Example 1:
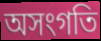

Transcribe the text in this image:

অসংগতি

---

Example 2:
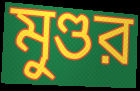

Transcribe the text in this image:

মুণ্ডর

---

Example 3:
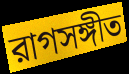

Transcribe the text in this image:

রাগসঙ্গীত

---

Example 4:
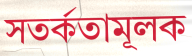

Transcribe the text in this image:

সতর্কতামূলক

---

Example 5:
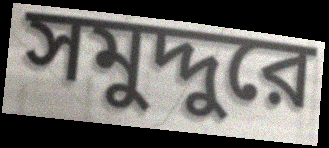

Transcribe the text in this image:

সমুদ্দুরে